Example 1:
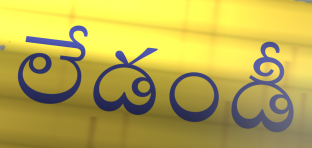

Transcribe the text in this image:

లేడండీ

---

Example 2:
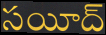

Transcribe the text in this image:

సయీద్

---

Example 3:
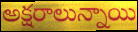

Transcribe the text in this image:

అక్షరాలున్నాయి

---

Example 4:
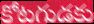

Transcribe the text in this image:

కోటగుడకు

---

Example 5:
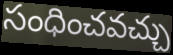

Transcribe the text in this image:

సంధించవచ్చు